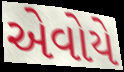
એવોયે